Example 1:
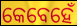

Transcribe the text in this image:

କେବେହେଁ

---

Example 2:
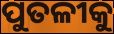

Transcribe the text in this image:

ପୁତଳୀକୁ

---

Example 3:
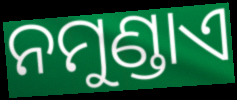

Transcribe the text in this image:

ନମୁଣ୍ଡାଏ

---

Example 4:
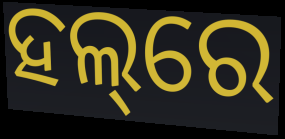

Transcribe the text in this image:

ହଲ୍‌ରେ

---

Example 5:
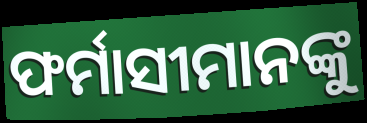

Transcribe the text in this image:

ଫର୍ମାସୀମାନଙ୍କୁ